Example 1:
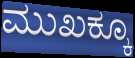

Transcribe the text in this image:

ಮುಖಕ್ಕೂ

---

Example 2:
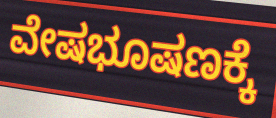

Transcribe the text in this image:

ವೇಷಭೂಷಣಕ್ಕೆ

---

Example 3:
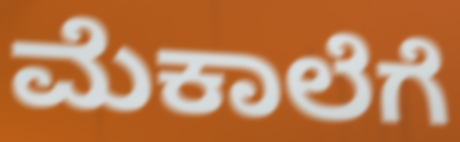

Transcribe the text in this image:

ಮೆಕಾಲೆಗೆ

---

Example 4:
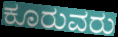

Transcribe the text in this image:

ಕೂರುವರು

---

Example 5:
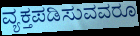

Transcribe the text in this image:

ವ್ಯಕ್ತಪಡಿಸುವವರೂ